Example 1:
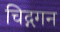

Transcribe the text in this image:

चिद्गगन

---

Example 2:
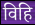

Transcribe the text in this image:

विहि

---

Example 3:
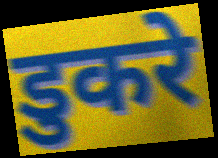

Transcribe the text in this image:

डुकरे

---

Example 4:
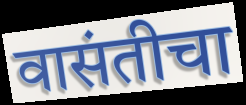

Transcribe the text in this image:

वासंतीचा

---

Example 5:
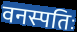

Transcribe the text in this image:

वनस्पतिः